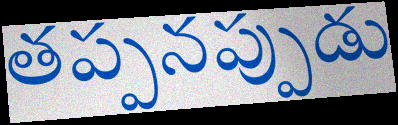
తప్పనప్పుడు